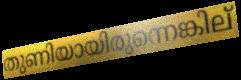
തുണിയായിരുന്നെങ്കില്